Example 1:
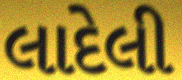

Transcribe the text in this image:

લાદેલી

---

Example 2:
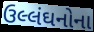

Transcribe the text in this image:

ઉલ્લંઘનોના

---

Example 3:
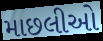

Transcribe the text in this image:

માછલીઓ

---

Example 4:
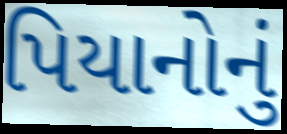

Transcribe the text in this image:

પિયાનોનું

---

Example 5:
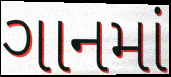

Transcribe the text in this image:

ગાનમાં